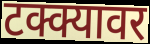
टक्क्यावर